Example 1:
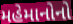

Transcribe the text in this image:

મહેમાનોનો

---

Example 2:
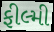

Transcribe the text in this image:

ફીલ્મી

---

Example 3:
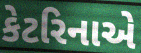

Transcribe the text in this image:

કેટરિનાએ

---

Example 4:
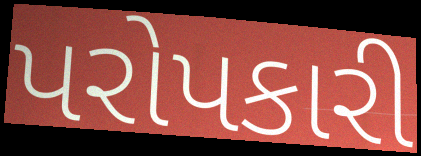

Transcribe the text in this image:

પરોપકારી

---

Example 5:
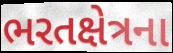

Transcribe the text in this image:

ભરતક્ષેત્રના